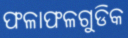
ଫଳାଫଳଗୁଡିକ